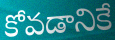
కోవడానికే